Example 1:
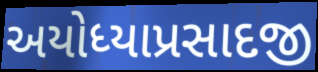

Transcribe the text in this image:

અયોધ્યાપ્રસાદજી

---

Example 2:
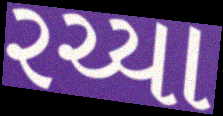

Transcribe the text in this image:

રચ્યા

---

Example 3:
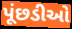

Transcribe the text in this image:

પૂંછડીઓ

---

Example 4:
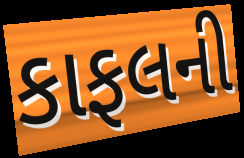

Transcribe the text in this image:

કાફલની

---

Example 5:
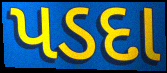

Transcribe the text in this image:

પડદા